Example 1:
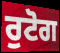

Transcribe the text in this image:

ਰੁਟੋਗ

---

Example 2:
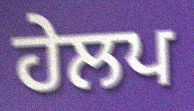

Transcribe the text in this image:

ਹੇਲਪ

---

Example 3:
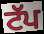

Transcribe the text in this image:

ਟੱਪ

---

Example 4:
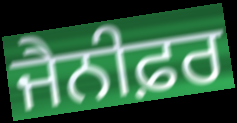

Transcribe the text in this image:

ਜੈਨੀਫ਼ਰ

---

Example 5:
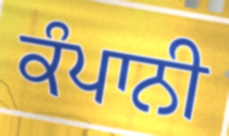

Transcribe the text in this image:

ਕੰਪਾਨੀ